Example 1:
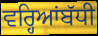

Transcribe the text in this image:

ਵਰ੍ਹਿਆਂਬੱਧੀ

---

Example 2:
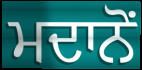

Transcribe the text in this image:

ਮਦਾਨੋਂ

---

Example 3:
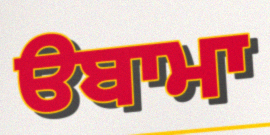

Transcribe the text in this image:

ੳਬਾਮਾ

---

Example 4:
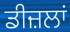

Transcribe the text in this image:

ਡੀਜ਼ਲਾਂ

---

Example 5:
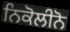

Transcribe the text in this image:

ਨਿਕੋਲੀਨੋ